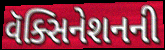
વૅક્સિનેશનની